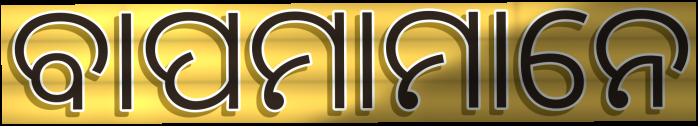
ବାପମାମାନେ